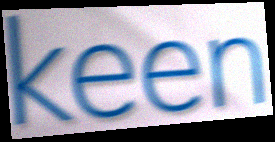
keen